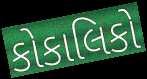
કોકાલિકો